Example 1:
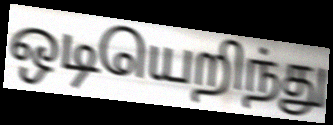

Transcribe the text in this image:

ஒடியெறிந்து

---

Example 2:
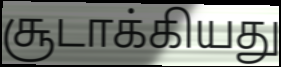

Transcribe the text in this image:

சூடாக்கியது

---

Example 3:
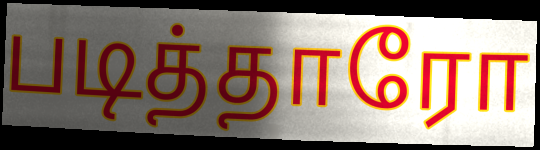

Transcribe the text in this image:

படித்தாரோ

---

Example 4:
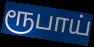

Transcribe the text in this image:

ரூபாய்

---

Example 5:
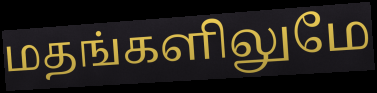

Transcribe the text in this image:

மதங்களிலுமே